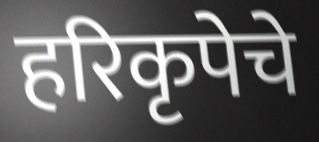
हरिकृपेचे